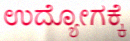
ಉದ್ಯೋಗಕ್ಕೆ